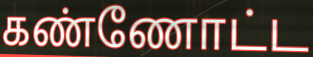
கண்ணோட்ட